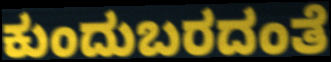
ಕುಂದುಬರದಂತೆ